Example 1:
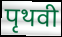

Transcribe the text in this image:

पृथवी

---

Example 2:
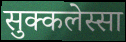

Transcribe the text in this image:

सुक्कलेस्सा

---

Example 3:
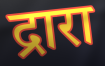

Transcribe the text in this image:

द्रारा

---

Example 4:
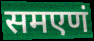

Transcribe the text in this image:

समएणं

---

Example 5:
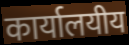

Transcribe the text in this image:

कार्यालयीय